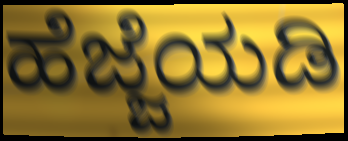
ಹೆಜ್ಜೆಯಡಿ